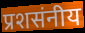
प्रशसंनीय